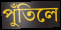
পুঁতিলে